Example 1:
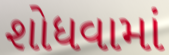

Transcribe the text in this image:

શોધવામાં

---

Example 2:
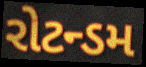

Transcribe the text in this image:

રોટન્ડમ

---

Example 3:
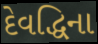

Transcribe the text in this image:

દેવદ્ધિના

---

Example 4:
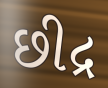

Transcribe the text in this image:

છીદ્ર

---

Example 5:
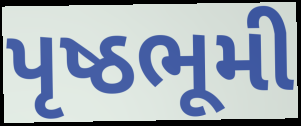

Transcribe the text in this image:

પૃષ્ઠભૂમી